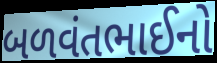
બળવંતભાઈનો